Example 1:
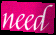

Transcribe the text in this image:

need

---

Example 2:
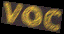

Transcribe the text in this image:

voc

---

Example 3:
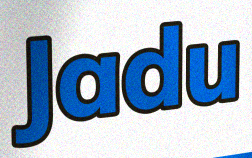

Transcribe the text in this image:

Jadu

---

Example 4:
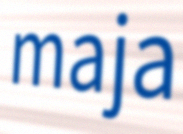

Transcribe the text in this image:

maja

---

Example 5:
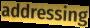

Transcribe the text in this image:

addressing